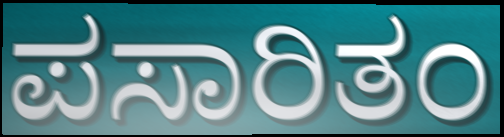
ಪಸಾರಿತಂ